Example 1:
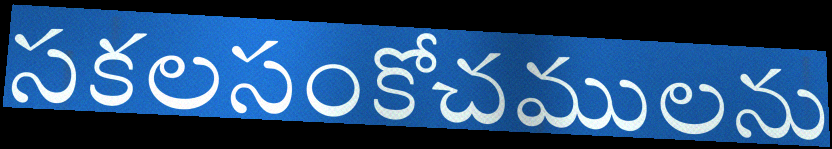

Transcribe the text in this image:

సకలసంకోచములను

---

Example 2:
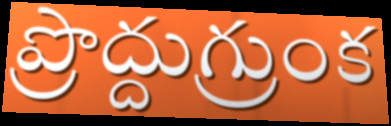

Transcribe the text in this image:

ప్రొద్దుగ్రుంక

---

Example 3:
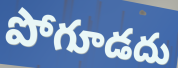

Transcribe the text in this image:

పోగూడదు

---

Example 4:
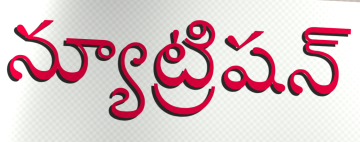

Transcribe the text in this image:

న్యూట్రిషన్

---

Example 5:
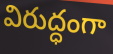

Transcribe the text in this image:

విరుద్ధంగా